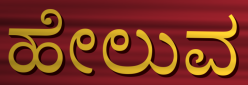
ಹೇಲುವ